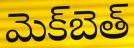
మెక్‌బెత్